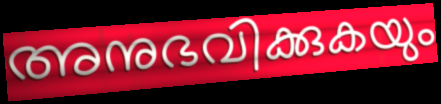
അനുഭവിക്കുകയും